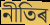
নীতিৰ